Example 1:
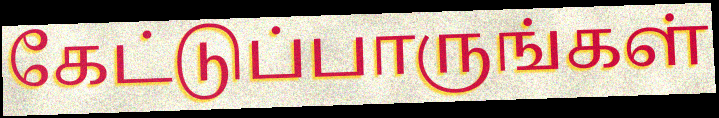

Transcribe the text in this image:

கேட்டுப்பாருங்கள்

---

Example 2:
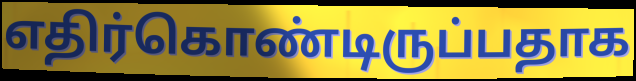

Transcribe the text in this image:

எதிர்கொண்டிருப்பதாக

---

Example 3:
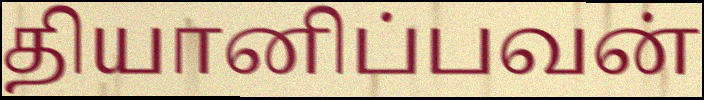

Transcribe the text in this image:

தியானிப்பவன்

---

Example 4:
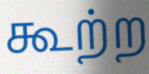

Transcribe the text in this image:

கூற்ற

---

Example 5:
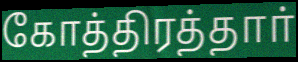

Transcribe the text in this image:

கோத்திரத்தார்